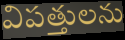
విపత్తులను